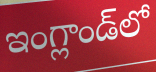
ఇంగ్లాండ్‌లో